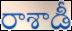
రాశాడీ